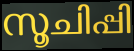
സൂചിപ്പി